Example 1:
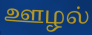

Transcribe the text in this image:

ஊழல்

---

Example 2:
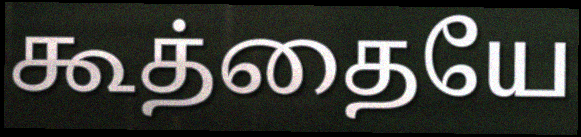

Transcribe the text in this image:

கூத்தையே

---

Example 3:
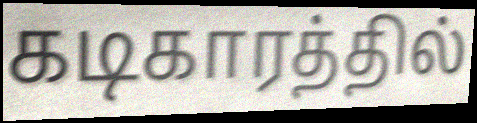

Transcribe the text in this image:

கடிகாரத்தில்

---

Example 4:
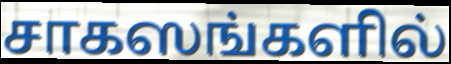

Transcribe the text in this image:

சாகஸங்களில்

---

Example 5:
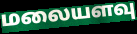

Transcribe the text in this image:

மலையளவு